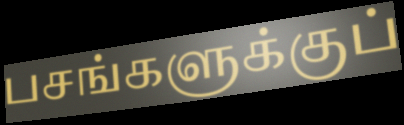
பசங்களுக்குப்